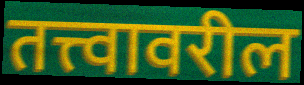
तत्त्वावरील